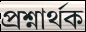
প্ৰশ্নাৰ্থক